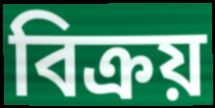
বিক্রয়